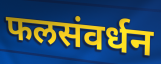
फलसंवर्धन